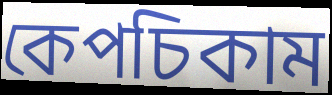
কেপচিকাম